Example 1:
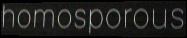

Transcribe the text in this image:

homosporous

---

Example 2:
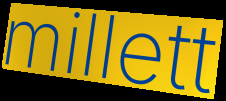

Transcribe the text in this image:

millett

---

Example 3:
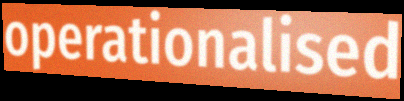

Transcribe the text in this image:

operationalised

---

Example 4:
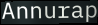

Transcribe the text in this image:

Annurap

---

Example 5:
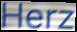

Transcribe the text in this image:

Herz